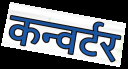
कन्वर्टर